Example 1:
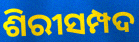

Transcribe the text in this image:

ଶିରୀସମ୍ପଦ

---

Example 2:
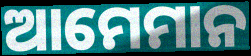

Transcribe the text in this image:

ଆମେମାନ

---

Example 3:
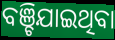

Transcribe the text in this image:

ବଞ୍ଚିଯାଇଥିବା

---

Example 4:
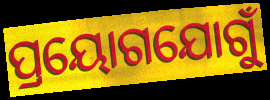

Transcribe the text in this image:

ପ୍ରୟୋଗଯୋଗୁଁ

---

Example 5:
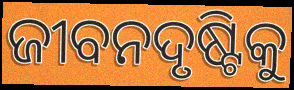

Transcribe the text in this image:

ଜୀବନଦୃଷ୍ଟିକୁ